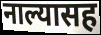
नाल्यासह